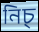
নিচ্